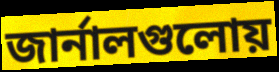
জার্নালগুলোয়